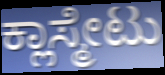
ಕ್ಲಾಸ್ಮೇಟು